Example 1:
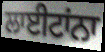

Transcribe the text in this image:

ਲਾਈਟਾਂਨਾ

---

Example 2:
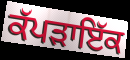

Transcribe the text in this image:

ਕੱਪੜਾਇੱਕ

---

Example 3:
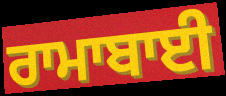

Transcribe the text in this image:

ਰਾਮਾਬਾਈ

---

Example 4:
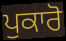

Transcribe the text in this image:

ਪੁਕਾਰੋ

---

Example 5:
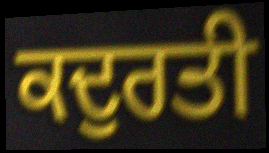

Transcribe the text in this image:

ਕਦੁਰਤੀ